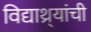
विद्याथ्र्यांची